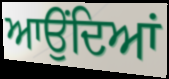
ਆਉਂਦਿਆਂ